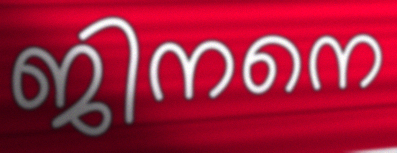
ജിനനെ